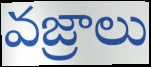
వజ్రాలు